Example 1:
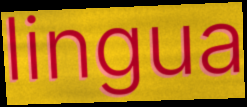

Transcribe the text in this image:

lingua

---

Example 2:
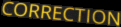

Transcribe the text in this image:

CORRECTION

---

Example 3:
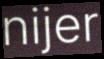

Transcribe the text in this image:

nijer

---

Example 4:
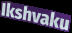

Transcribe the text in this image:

Ikshvaku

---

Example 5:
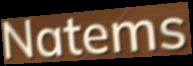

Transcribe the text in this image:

Natems